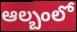
ఆల్బంలో